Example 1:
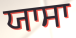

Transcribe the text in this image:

ਯਾਸਾ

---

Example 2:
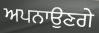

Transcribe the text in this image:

ਅਪਨਾਉਣਗੇ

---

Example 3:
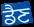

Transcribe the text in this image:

ਡੈਣ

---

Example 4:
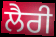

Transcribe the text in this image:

ਲੈਰੀ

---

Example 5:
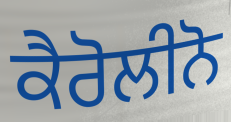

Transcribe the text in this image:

ਕੈਰੋਲੀਨੋ